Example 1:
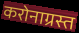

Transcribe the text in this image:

करोनाग्रस्त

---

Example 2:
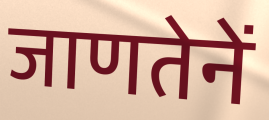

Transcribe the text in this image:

जाणतेनें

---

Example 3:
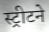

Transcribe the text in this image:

स्ट्रीटने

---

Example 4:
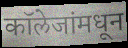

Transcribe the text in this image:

कॉलेजांमधून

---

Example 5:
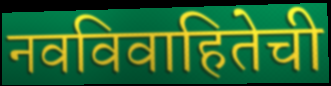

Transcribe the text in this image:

नवविवाहितेची